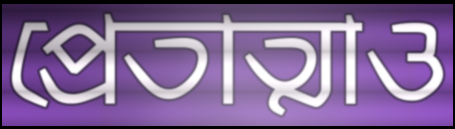
প্রেতাত্মাও